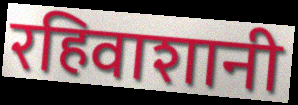
रहिवाशानी